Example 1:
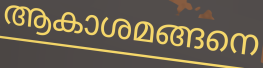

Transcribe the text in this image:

ആകാശമങ്ങനെ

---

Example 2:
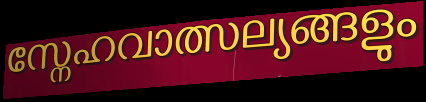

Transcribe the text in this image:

സ്നേഹവാത്സല്യങ്ങളും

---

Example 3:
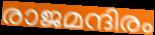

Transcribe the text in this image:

രാജമന്ദിരം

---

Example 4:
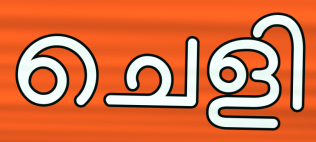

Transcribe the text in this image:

ചെളി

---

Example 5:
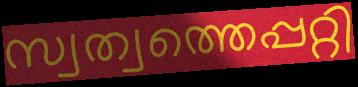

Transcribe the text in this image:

സ്വത്വത്തെപ്പറ്റി